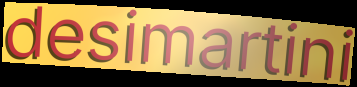
desimartini